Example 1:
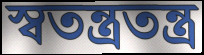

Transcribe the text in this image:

স্বতন্ত্ৰতন্ত্ৰ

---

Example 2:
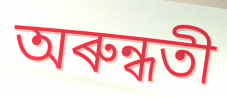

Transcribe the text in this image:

অৰুন্ধতী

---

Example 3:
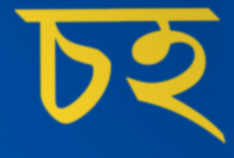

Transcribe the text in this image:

চহ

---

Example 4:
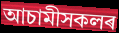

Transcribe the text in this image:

আচামীসকলৰ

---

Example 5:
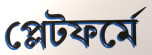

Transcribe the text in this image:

প্লেটফৰ্মে